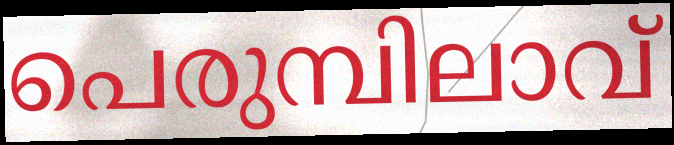
പെരുമ്പിലാവ്